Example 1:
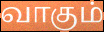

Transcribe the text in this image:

வாகும்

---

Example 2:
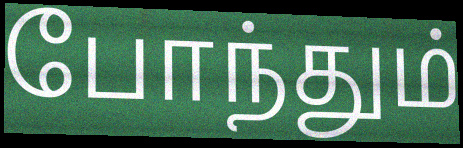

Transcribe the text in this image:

போந்தும்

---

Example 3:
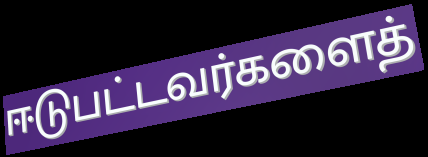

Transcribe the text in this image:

ஈடுபட்டவர்களைத்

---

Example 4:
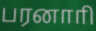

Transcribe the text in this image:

பரனாரி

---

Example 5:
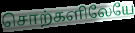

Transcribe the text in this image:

சொற்களிலேயே